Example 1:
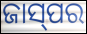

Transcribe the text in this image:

ଜାସ୍‌ପର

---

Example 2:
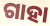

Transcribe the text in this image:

ଗାହା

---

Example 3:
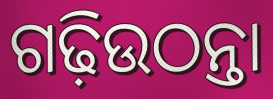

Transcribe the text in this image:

ଗଢ଼ିଉଠନ୍ତା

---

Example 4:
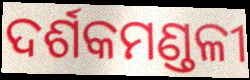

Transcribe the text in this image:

ଦର୍ଶକମଣ୍ଡଳୀ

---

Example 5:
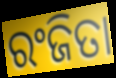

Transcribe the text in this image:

ରଂଜିତା